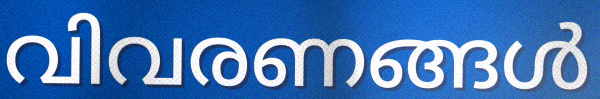
വിവരണങ്ങൾ